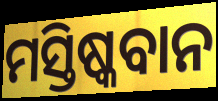
ମସ୍ତିଷ୍କବାନ